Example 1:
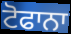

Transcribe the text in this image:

ਟੋਫਾਨਾ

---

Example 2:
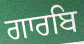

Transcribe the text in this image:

ਗਾਰਬਿ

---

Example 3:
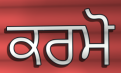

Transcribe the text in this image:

ਕਰਮੋ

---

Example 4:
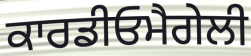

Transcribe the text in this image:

ਕਾਰਡੀਓਮੈਗੇਲੀ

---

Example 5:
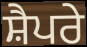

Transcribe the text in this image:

ਸ਼ੈਪਰੇ